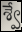
శ్వే